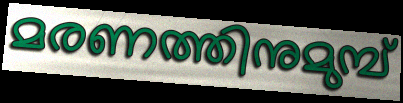
മരണത്തിനുമുമ്പ്